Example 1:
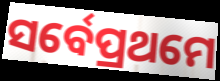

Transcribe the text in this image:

ସର୍ବେପ୍ରଥମେ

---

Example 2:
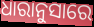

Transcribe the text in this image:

ଧାରାନୁସାରେ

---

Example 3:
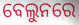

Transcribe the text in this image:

ବେଲୁନରେ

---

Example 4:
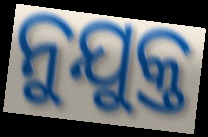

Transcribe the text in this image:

ନୁଯୁକ୍ତ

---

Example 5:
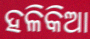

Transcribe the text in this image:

ହଳିକିଆ